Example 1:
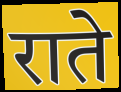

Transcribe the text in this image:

राते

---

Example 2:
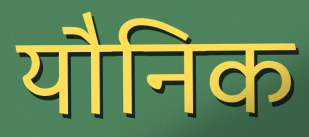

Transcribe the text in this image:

यौनिक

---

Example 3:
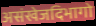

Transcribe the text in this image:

असंखेजदिभागो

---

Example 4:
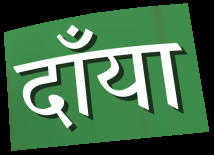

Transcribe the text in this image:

दाँया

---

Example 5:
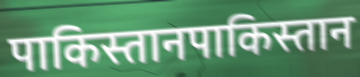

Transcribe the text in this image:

पाकिस्तानपाकिस्तान